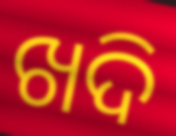
ଖଦି